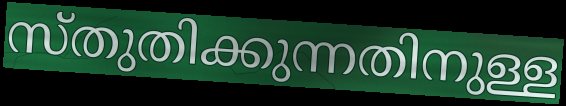
സ്തുതിക്കുന്നതിനുള്ള